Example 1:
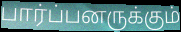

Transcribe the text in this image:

பார்ப்பனருக்கும்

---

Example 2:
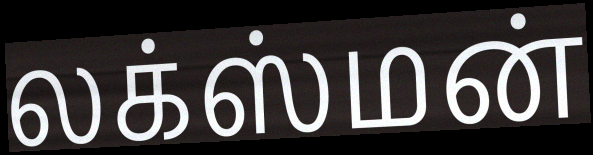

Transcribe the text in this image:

லக்ஸ்மன்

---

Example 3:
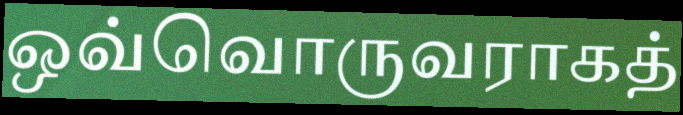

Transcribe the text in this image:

ஒவ்வொருவராகத்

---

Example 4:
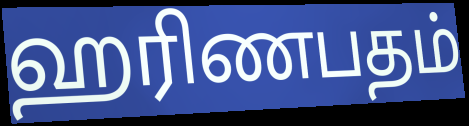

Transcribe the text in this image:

ஹரிணபதம்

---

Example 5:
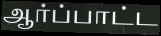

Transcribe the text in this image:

ஆர்ப்பாட்ட